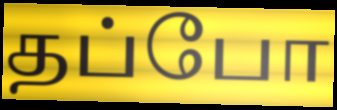
தப்போ